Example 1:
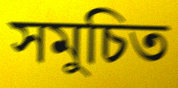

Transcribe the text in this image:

সমুচিত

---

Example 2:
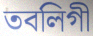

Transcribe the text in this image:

তবলিগী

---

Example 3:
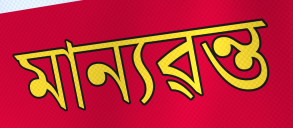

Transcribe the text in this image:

মান্যৱন্ত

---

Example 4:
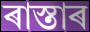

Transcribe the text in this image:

ৰাস্তাৰ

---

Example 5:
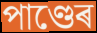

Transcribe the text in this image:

পাণ্ডেৰ